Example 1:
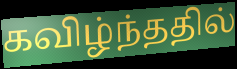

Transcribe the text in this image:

கவிழ்ந்ததில்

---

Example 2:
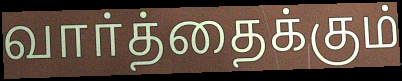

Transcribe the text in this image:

வார்த்தைக்கும்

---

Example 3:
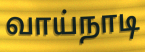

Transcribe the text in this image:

வாய்நாடி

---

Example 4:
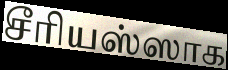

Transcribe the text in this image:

சீரியஸ்ஸாக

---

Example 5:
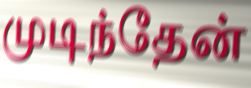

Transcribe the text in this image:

முடிந்தேன்